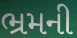
ભ્રમની